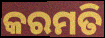
କରମତି